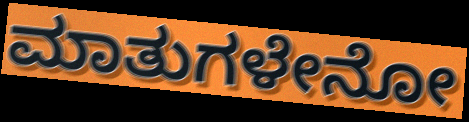
ಮಾತುಗಳೇನೋ